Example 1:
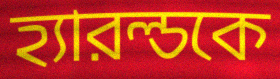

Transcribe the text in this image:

হ্যারল্ডকে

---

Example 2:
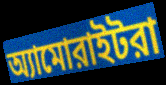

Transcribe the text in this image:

অ্যামোরাইটরা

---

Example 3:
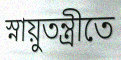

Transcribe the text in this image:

স্নায়ুতন্ত্রীতে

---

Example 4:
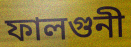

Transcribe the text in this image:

ফালগুনী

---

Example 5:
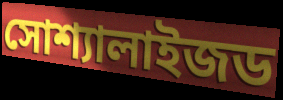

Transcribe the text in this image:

সোশ্যালাইজড